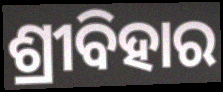
ଶ୍ରୀବିହାର